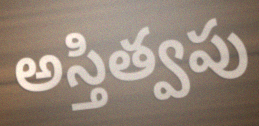
అస్తిత్వపు